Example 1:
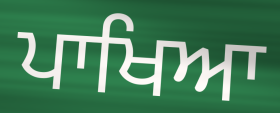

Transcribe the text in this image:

ਪਾਖਿਆ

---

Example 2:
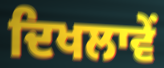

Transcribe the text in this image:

ਦਿਖਲਾਵੇਂ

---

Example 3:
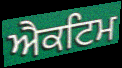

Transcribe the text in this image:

ਐਕਟਿਮ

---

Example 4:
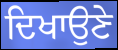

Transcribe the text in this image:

ਦਿਖਾਉਣੇ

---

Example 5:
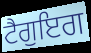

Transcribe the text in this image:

ਟੈਗੁਇਗ